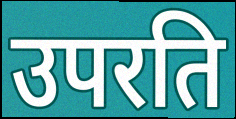
उपरति